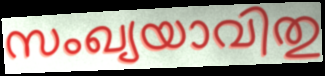
സംഖ്യയാവിതു